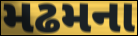
મઢમના